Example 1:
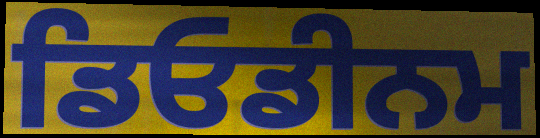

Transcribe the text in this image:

ਡਿਓਡੀਨਮ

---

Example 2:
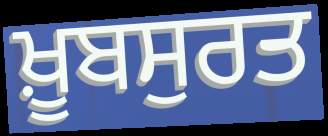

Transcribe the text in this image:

ਖ਼ੂਬਸੁਰਤ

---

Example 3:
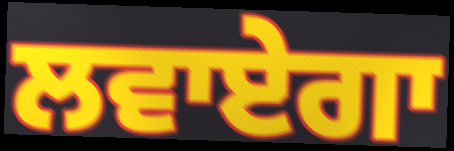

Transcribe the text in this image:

ਲਵਾਏਗਾ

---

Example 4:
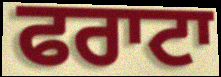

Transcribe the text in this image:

ਫਰਾਟਾ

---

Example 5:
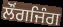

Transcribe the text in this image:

ਲੌਂਗਜਿੰਗ